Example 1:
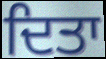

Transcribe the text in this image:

ਦਿਤਾ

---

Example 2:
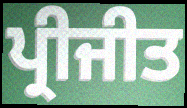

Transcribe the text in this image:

ਪ੍ਰੀਜੀਤ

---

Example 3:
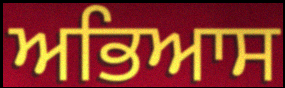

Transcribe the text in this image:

ਅਭਿਆਸ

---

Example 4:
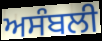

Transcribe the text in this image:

ਅਸੰਬਲੀ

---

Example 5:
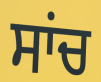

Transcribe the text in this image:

ਸਾਂਚ